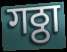
गठ्ठा